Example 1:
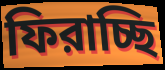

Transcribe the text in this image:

ফিরাচ্ছি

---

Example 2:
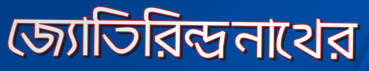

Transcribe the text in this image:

জ্যোতিরিন্দ্রনাথের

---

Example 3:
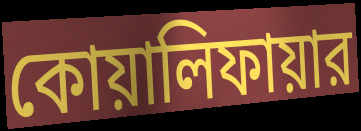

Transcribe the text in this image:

কোয়ালিফায়ার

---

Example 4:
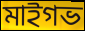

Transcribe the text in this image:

মাইগভ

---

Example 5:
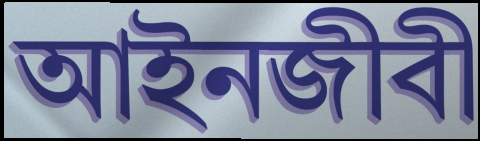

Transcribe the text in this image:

আইনজীবী